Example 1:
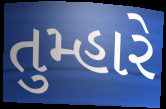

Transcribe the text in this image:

તુમ્હારે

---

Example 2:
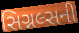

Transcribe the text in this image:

સિગ્નલ્સની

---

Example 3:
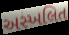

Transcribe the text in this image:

અસ્ખલિત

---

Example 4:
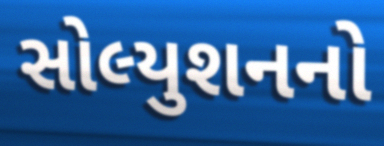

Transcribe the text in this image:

સોલ્યુશનનો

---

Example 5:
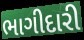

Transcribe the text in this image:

ભાગીદારી